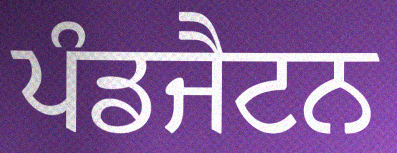
ਪੰਡਜੈਟਨ